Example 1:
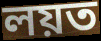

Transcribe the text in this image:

লয়ত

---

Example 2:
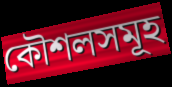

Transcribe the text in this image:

কৌশলসমূহ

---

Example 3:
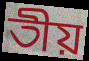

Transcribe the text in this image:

তীয়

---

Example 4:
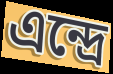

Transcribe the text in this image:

এন্দ্ৰে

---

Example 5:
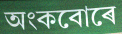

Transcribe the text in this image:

অংকবোৰে